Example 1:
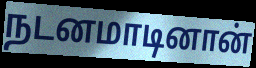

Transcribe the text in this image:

நடனமாடினான்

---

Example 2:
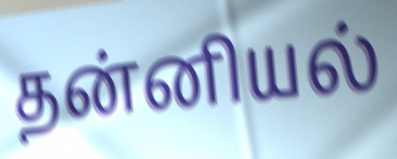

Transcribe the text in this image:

தன்னியல்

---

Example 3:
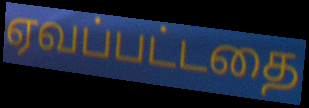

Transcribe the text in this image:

ஏவப்பட்டதை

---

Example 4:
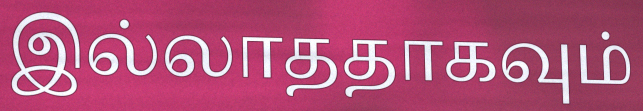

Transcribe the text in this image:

இல்லாததாகவும்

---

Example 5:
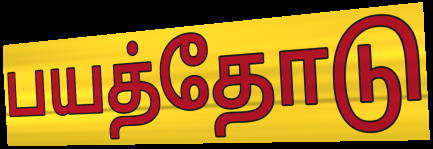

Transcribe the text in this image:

பயத்தோடு